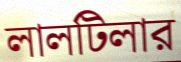
লালটিলার